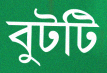
বুটটি